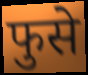
फुसे